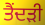
ਤੈਂਦੜੀ